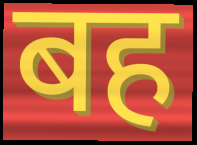
बह